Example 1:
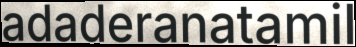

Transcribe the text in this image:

adaderanatamil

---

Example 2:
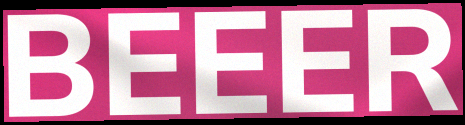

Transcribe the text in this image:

BEEER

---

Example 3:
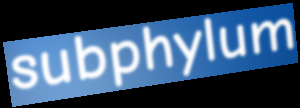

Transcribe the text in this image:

subphylum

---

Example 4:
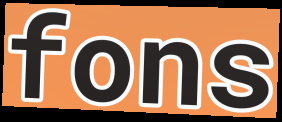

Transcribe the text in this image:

fons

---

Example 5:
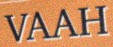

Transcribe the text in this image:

VAAH